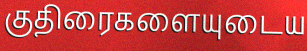
குதிரைகளையுடைய